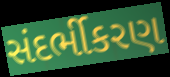
સંદર્ભીકરણ